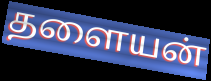
தளையன்